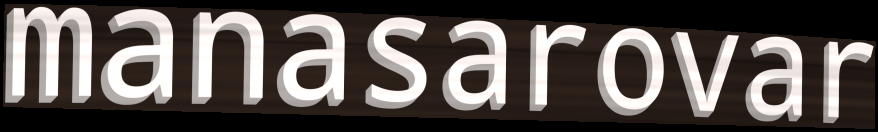
manasarovar